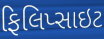
ફિલિપ્સાઇટ